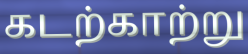
கடற்காற்று